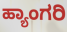
ಹ್ಯಾಂಗರಿ